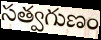
సత్వగుణం